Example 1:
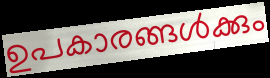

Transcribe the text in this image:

ഉപകാരങ്ങൾക്കും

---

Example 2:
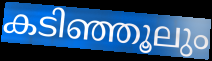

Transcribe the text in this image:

കടിഞ്ഞൂലും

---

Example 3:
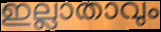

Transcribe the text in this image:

ഇല്ലാതാവും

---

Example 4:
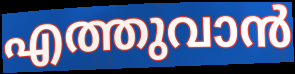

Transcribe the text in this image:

എത്തുവാൻ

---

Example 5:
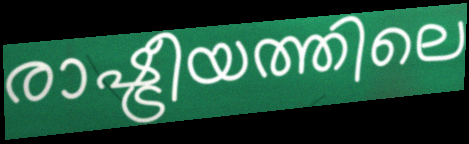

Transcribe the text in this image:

രാഷ്ട്രീയത്തിലെ